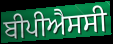
ਬੀਪੀਐਸਸੀ